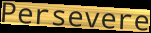
Persevere